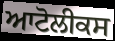
ਆਟੋਲੀਕਸ